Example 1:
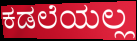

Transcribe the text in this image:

ಕಡಲೆಯಲ್ಲ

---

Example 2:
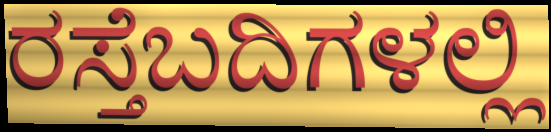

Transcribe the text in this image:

ರಸ್ತೆಬದಿಗಳಲ್ಲಿ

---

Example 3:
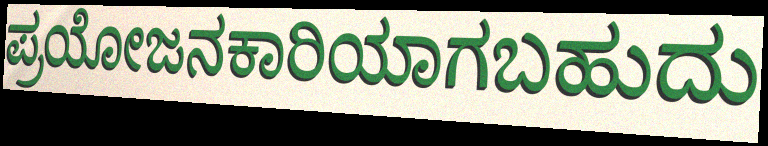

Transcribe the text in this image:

ಪ್ರಯೋಜನಕಾರಿಯಾಗಬಹುದು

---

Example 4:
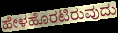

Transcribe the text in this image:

ಹೇಳಹೊರಟಿರುವುದು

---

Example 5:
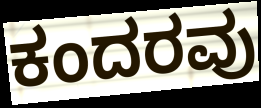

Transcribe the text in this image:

ಕಂದರವು